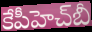
కేపీహెచ్‌బీ